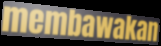
membawakan